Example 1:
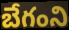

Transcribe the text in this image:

బేగంని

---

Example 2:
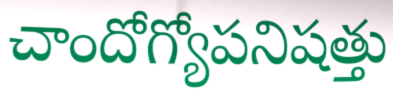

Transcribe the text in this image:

చాందోగ్యోపనిషత్తు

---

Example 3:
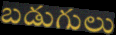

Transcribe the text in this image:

బడుగులు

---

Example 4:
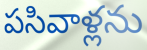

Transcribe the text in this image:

పసివాళ్లను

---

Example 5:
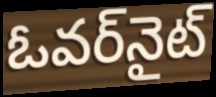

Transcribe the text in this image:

ఓవర్‌నైట్